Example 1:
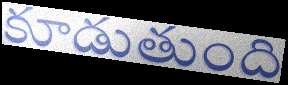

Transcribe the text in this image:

కూడుతుంది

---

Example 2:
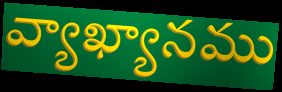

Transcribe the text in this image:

వ్యాఖ్యానము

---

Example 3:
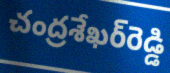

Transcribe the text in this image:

చంద్రశేఖర్‌రెడ్డి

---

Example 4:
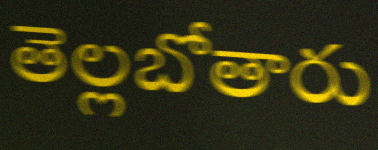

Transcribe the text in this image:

తెల్లబోతారు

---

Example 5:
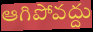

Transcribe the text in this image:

ఆగిపోవద్దు